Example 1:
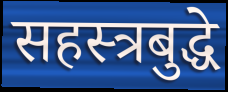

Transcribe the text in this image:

सहस्त्रबुद्धे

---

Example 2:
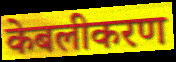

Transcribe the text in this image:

केबलीकरण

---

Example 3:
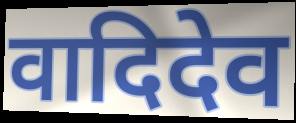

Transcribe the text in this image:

वादिदेव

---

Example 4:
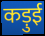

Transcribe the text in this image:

कड़ुई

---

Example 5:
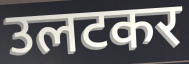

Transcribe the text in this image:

उलटकर